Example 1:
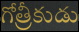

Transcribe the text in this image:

గోత్రీకుడు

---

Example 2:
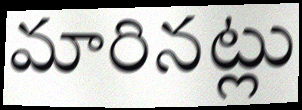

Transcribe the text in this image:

మారినట్లు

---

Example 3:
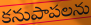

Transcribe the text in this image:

కనుపాపలను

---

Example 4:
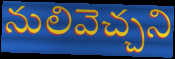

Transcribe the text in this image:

నులివెచ్చని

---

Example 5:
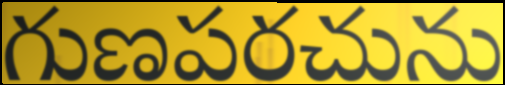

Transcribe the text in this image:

గుణపరచును